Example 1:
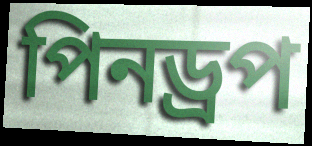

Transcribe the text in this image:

পিনড্রপ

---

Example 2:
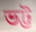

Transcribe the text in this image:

ভট্ট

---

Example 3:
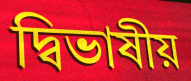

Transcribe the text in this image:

দ্বিভাষীয়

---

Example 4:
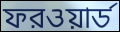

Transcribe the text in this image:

ফরওয়ার্ড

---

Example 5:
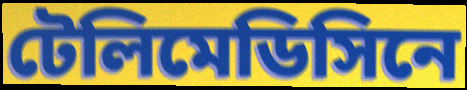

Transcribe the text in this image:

টেলিমেডিসিনে